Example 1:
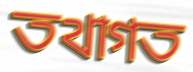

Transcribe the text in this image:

তথাগত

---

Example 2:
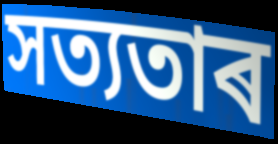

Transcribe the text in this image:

সত্যতাৰ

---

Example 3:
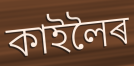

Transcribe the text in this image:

কাইলৈৰ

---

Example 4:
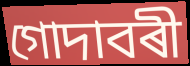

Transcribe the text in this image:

গোদাবৰী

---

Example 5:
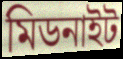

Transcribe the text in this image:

মিডনাইট